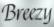
Breezy